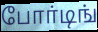
போர்டிங்